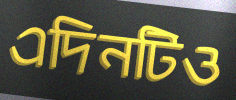
এদিনটিও